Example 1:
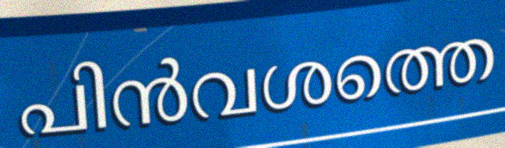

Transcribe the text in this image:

പിൻവശത്തെ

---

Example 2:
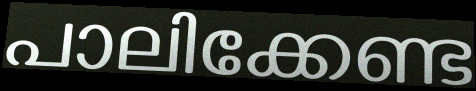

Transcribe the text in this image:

പാലിക്കേണ്ട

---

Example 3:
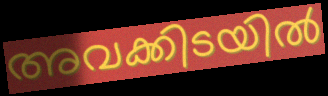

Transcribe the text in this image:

അവക്കിടയിൽ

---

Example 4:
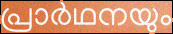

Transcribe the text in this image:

പ്രാർഥനയും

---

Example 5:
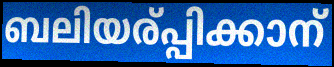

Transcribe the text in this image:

ബലിയര്പ്പിക്കാന്